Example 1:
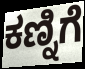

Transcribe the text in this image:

ಕಣ್ನಿಗೆ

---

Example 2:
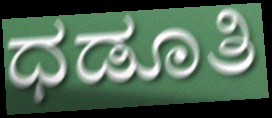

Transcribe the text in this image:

ಧಡೂತಿ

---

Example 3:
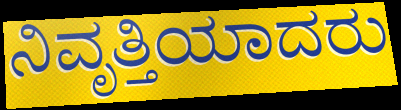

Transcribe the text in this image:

ನಿವೃತ್ತಿಯಾದರು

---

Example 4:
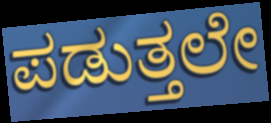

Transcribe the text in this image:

ಪಡುತ್ತಲೇ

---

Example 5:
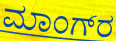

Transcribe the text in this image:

ಮಾಂಗ್‌ರ